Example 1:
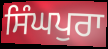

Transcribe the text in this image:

ਸਿੰਘਪੁਰਾ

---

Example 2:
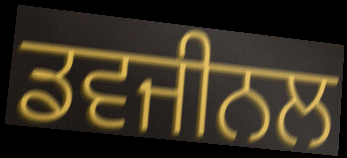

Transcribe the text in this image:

ਡਵਜੀਨਲ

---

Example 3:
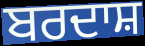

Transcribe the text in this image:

ਬਰਦਾਸ਼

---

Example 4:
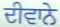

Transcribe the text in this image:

ਦੀਵਾਨੇ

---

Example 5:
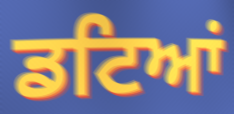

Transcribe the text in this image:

ਡਟਿਆਂ